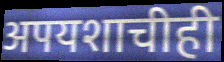
अपयशाचीही